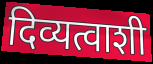
दिव्यत्वाशी